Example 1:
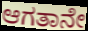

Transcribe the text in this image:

ಆಗತಾನೇ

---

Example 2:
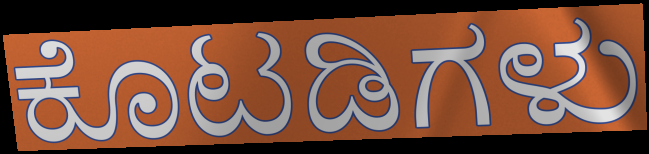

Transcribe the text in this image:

ಕೊಟಡಿಗಳು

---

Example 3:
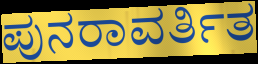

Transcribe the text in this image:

ಪುನರಾವರ್ತಿತ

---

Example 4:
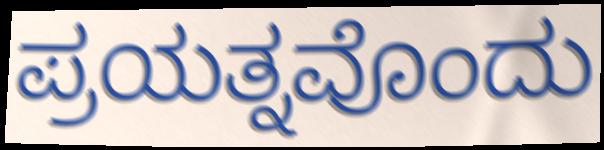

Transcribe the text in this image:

ಪ್ರಯತ್ನವೊಂದು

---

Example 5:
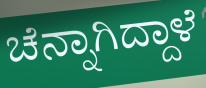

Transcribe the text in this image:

ಚೆನ್ನಾಗಿದ್ದಾಳೆ